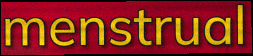
menstrual